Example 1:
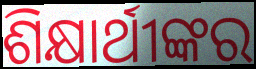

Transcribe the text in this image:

ଶିକ୍ଷାର୍ଥୀଙ୍କର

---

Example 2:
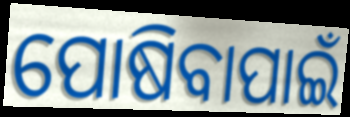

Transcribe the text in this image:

ପୋଷିବାପାଇଁ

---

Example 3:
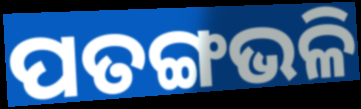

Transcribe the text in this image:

ପତଙ୍ଗଭଳି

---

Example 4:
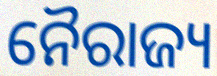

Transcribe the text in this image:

ନୈରାଜ୍ୟ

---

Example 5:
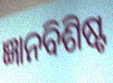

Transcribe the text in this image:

ଜ୍ଞାନବିଶିଷ୍ଟ